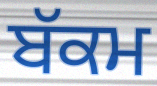
ਬੱਕਮ